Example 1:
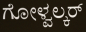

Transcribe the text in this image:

ಗೋಳ್ವಲ್ಕರ್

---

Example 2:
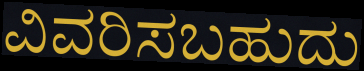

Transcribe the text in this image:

ವಿವರಿಸಬಹುದು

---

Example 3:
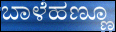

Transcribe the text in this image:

ಬಾಳೆಹಣ್ಣೂ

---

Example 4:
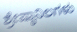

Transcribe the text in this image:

ಶ್ರೇಷ್ಠಾನಿಲಗಳು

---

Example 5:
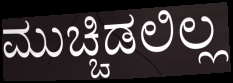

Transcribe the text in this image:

ಮುಚ್ಚಿಡಲಿಲ್ಲ